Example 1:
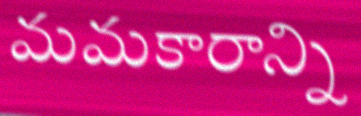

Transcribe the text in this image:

మమకారాన్ని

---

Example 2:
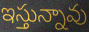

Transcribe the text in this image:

ఇస్తున్నావు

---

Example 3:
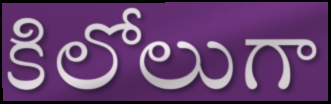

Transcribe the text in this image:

కిలోలుగా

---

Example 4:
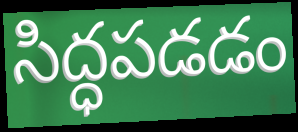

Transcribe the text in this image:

సిద్ధపడడం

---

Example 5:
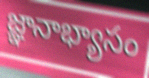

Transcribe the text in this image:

జ్ఞానాభ్యాసం